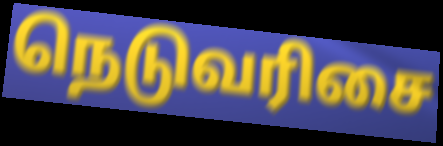
நெடுவரிசை